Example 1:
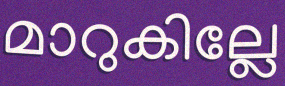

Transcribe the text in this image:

മാറുകില്ലേ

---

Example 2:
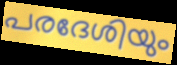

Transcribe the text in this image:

പരദേശിയും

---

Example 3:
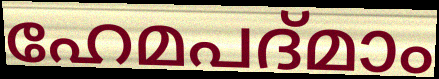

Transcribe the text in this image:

ഹേമപദ്മാം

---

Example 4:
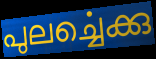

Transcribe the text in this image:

പുലൎച്ചെക്കു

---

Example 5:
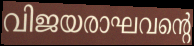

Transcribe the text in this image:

വിജയരാഘവന്റെ